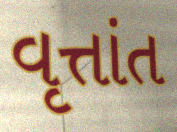
વૃત્તાંત